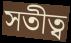
সতীত্ব